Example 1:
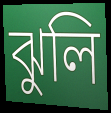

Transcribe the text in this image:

ঝুলি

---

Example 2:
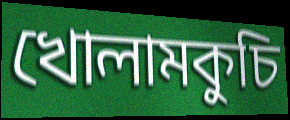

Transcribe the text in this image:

খোলামকুচি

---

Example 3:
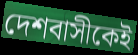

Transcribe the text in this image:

দেশবাসীকেই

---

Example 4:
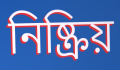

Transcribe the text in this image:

নিষ্ক্রিয়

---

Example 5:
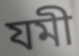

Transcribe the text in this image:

যমী